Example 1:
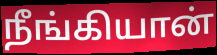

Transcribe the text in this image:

நீங்கியான்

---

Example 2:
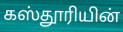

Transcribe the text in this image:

கஸ்தூரியின்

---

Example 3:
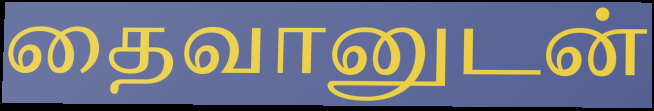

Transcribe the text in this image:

தைவானுடன்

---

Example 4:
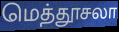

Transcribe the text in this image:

மெத்தூசலா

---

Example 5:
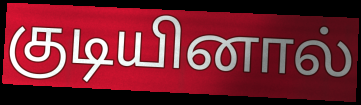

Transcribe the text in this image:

குடியினால்